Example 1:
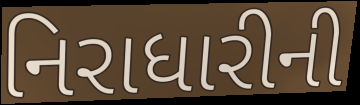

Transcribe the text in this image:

નિરાધારીની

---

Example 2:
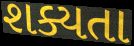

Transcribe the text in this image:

શક્યતા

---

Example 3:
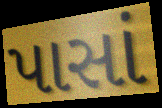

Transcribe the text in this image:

પાસાં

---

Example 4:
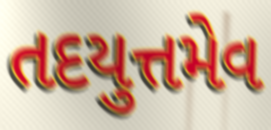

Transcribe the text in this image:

તદયુત્તમેવ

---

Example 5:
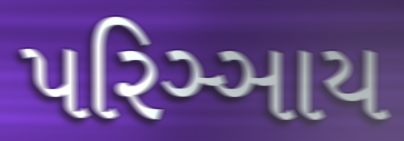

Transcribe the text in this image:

પરિઞ્ઞાય